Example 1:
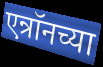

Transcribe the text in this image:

एन्रॉनच्या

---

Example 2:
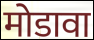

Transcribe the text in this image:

मोडावा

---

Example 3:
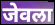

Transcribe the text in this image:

जेवला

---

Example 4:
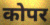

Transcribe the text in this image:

कोपर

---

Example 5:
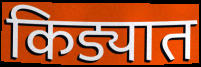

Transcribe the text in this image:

किड्यात